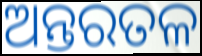
ଅନ୍ତରତଳ